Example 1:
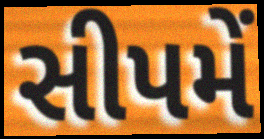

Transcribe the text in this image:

સીપમેં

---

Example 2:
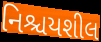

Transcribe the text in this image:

નિશ્ચયશીલ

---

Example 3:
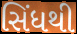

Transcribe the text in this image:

સિંધથી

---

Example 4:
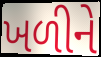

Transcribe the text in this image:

ખળીને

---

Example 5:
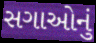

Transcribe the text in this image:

સગાઓનું